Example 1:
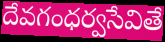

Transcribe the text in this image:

దేవగంధర్వసేవితే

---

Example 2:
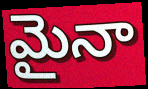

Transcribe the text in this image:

మైనా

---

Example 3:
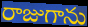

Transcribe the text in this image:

రాజుగాను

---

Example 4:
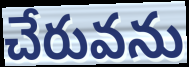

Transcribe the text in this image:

చేరువను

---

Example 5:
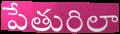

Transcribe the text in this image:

పేతురిలా